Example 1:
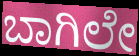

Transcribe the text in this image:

ಬಾಗಿಲೇ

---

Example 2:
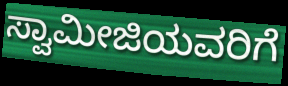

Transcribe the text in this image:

ಸ್ವಾಮೀಜಿಯವರಿಗೆ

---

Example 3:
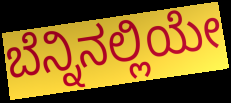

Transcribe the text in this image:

ಬೆನ್ನಿನಲ್ಲಿಯೇ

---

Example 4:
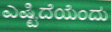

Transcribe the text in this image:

ಎಷ್ಟಿದೆಯೆಂದು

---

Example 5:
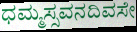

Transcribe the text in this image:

ಧಮ್ಮಸ್ಸವನದಿವಸೇ